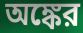
অঙ্কের